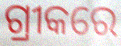
ଗ୍ରୀକରେ